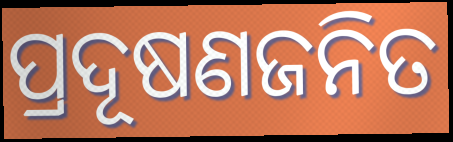
ପ୍ରଦୂଷଣଜନିତ